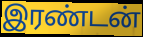
இரண்டன்